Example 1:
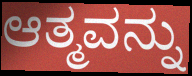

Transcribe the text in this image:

ಆತ್ಮವನ್ನು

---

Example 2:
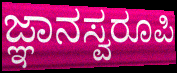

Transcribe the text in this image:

ಜ್ಞಾನಸ್ವರೂಪಿ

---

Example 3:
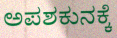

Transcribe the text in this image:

ಅಪಶಕುನಕ್ಕೆ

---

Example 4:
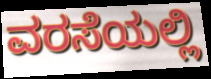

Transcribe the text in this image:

ವರಸೆಯಲ್ಲಿ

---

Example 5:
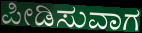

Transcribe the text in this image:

ಪೀಡಿಸುವಾಗ